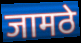
जामठे